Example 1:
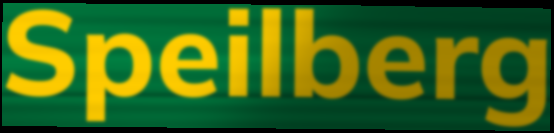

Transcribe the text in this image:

Speilberg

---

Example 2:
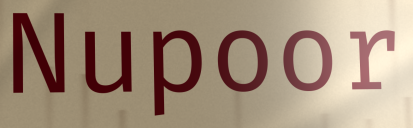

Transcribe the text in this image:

Nupoor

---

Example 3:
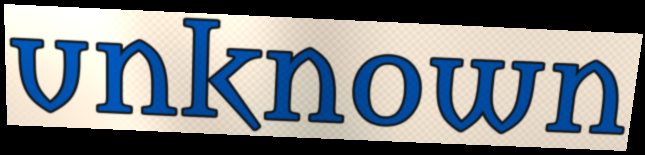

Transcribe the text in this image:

unknown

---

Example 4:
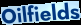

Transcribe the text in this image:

Oilfields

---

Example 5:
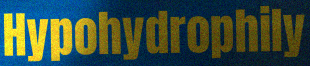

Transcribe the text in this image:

Hypohydrophily